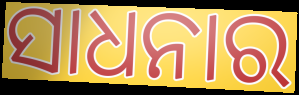
ସାଧନାର